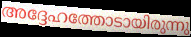
അദ്ദേഹത്തോടായിരുന്നു